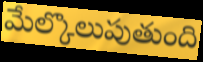
మేల్కొలుపుతుంది